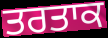
ਤਰਤਾਕ